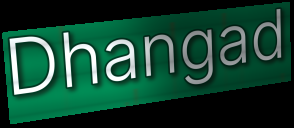
Dhangad